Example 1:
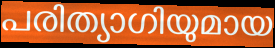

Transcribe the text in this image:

പരിത്യാഗിയുമായ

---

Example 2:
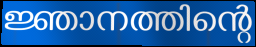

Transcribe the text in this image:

ജ്ഞാനത്തിന്റെ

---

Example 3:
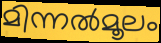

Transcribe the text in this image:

മിന്നൽമൂലം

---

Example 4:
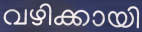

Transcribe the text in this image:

വഴിക്കായി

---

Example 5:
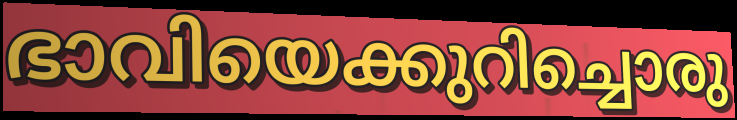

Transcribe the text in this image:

ഭാവിയെക്കുറിച്ചൊരു